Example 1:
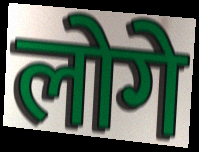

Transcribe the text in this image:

लोगे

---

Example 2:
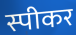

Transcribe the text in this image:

स्पीकर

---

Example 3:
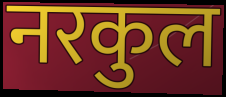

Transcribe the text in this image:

नरकुल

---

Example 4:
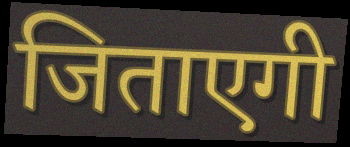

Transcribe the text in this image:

जिताएगी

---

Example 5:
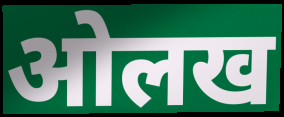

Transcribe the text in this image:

ओलख